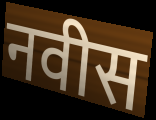
नवीस